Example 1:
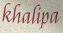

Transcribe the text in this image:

khalipa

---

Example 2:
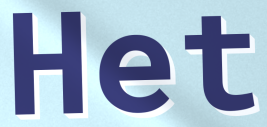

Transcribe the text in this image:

Het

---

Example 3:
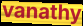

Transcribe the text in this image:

vanathy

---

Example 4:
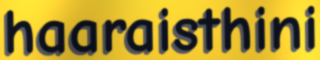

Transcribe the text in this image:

haaraisthini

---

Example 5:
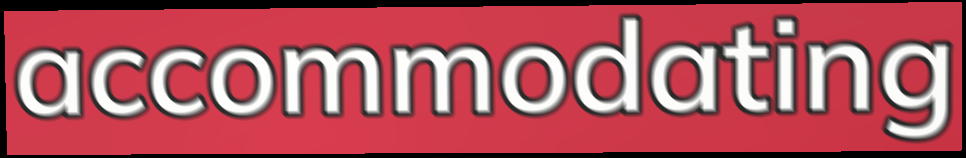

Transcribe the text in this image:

accommodating